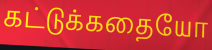
கட்டுக்கதையோ